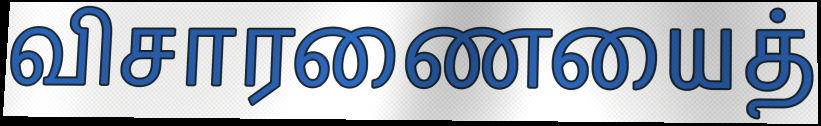
விசாரணையைத்